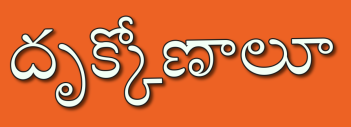
దృక్కోణాలూ